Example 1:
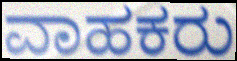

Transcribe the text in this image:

ವಾಹಕರು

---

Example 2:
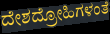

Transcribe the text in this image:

ದೇಶದ್ರೋಹಿಗಳಂತೆ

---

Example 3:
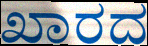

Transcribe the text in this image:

ಖಾರದ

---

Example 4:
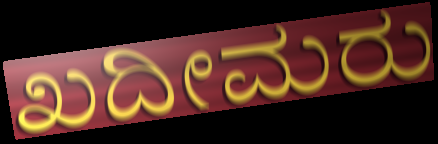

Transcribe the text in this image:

ಖದೀಮರು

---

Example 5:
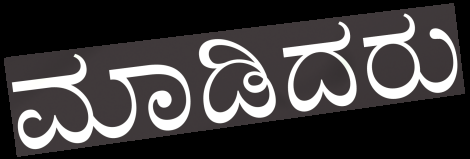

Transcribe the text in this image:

ಮಾಡಿದರು